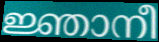
ജ്ഞാനീ